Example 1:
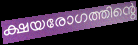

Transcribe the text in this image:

ക്ഷയരോഗത്തിന്റെ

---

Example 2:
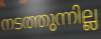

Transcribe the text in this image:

നടത്തുന്നില്ല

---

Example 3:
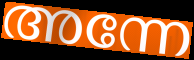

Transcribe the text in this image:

അന്നേ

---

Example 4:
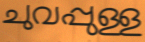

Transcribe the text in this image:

ചുവപ്പുള്ള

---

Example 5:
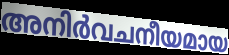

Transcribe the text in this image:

അനിർവചനീയമായ